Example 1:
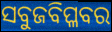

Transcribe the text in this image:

ସବୁଜବିପ୍ଳବର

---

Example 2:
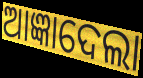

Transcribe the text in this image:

ଆଜ୍ଞାଦେଲା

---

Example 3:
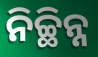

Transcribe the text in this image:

ନିଚ୍ଛିନ୍ନ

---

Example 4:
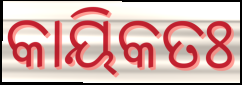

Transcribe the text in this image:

କାୟିକତଃ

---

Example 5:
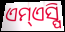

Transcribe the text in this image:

ଏମ୍ଏସ୍ପି